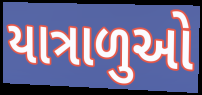
યાત્રાળુઓ